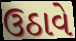
ઉઠાવે